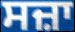
ਸਜ਼ਾ